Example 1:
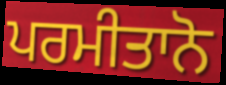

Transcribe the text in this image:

ਪਰਮੀਤਾਨੋ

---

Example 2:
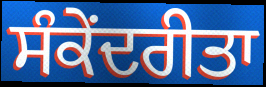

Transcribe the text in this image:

ਸੰਕੇਂਦਰੀਤਾ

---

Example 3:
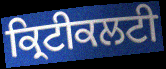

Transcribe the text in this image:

ਕ੍ਰਿਟੀਕਲਟੀ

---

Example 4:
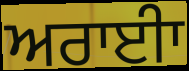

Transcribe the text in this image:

ਅਰਾਈਾ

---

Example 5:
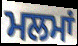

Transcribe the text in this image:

ਮਲਮਾਂ